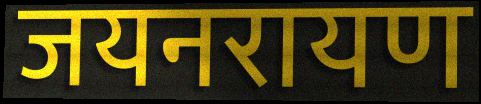
जयनरायण